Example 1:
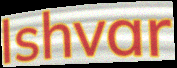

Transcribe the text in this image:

Ishvar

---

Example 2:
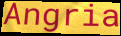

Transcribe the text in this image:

Angria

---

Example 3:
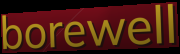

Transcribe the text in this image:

borewell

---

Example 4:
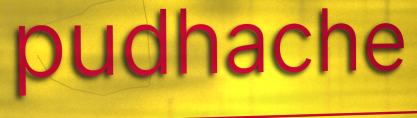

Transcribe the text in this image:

pudhache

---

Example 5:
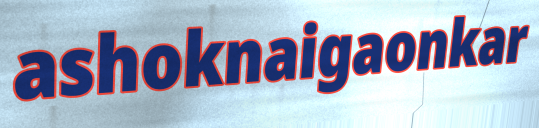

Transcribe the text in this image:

ashoknaigaonkar